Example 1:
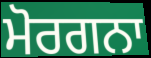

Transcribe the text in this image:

ਮੋਰਗਨਾ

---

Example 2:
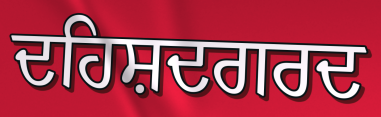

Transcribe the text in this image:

ਦਹਿਸ਼ਦਗਰਦ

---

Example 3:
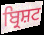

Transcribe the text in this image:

ਬ੍ਰਿਸ਼ਟ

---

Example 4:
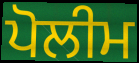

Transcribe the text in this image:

ਪੋਲੀਮ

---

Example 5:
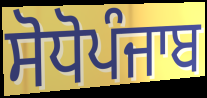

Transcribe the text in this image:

ਸੋਧੋਪੰਜਾਬ